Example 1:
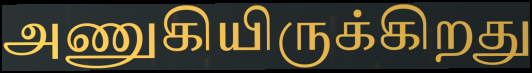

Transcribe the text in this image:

அணுகியிருக்கிறது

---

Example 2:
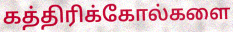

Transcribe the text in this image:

கத்திரிக்கோல்களை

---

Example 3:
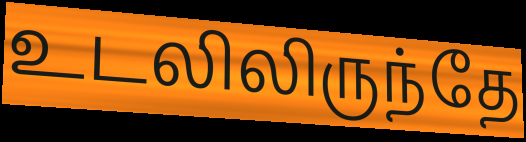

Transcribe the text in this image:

உடலிலிருந்தே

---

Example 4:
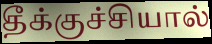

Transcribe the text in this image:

தீக்குச்சியால்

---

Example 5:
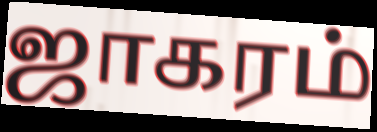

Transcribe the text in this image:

ஜாகரம்